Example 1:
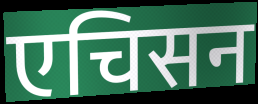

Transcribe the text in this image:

एचिसन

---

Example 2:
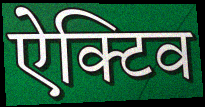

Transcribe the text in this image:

ऐक्टिव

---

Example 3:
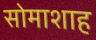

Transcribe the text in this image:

सोमाशाह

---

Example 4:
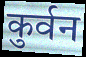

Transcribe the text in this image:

कुर्वन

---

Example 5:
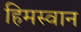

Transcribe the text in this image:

हिमस्वान